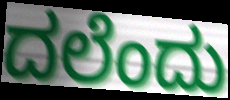
ದಲೆಂದು